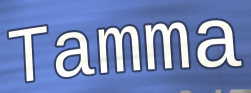
Tamma